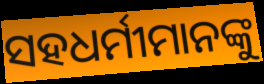
ସହଧର୍ମୀମାନଙ୍କୁ